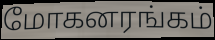
மோகனரங்கம்